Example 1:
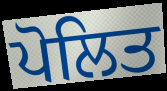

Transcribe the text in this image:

ਪੋਲਿਤ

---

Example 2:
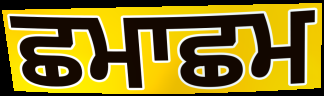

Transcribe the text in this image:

ਛਮਾਛਮ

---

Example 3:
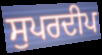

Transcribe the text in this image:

ਸੁਪਰਦੀਪ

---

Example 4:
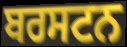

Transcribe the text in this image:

ਬਰਸਟਨ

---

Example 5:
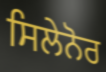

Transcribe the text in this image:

ਸਿਲੇਨੋਰ